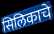
सिलिकाचे